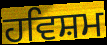
ਹਵਿਸ਼ਮ